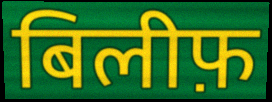
बिलीफ़